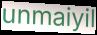
unmaiyil